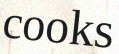
cooks